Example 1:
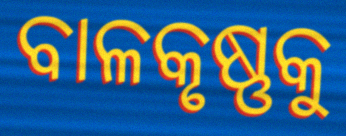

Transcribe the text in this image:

ବାଳକୃଷ୍ଣକୁ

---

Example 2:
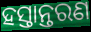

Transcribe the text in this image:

ହସ୍ତାନ୍ତରଣ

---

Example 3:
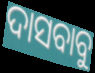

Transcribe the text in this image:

ଦାସବାବୁ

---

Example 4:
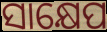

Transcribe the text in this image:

ସାକ୍ଷେପ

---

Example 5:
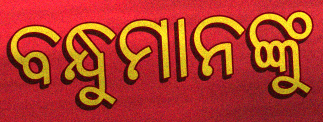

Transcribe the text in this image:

ବନ୍ଧୁମାନଙ୍କୁ